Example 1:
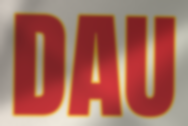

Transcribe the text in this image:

DAU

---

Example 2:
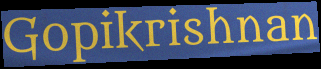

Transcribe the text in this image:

Gopikrishnan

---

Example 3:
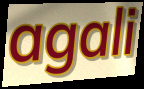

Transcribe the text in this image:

agali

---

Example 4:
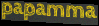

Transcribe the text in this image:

papamma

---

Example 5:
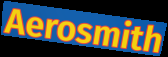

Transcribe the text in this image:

Aerosmith